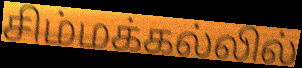
சிம்மக்கல்லில்